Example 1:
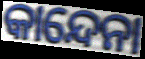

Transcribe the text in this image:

କାନ୍ଦେନା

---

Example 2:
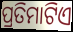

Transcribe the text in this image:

ପ୍ରତିମାଟିଏ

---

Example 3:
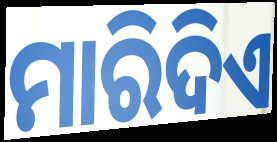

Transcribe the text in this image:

ମାରିଦିଏ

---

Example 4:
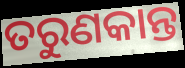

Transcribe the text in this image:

ତରୁଣକାନ୍ତ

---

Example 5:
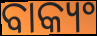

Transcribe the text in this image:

ବାକ୍ୟଂ